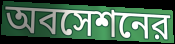
অবসেশনের